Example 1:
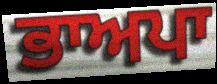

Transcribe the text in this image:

ਭਾਅਪਾ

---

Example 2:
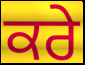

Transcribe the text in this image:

ਕਰੇ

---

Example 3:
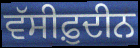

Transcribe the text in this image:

ਵੱਸੀਫ਼ੁਦੀਨ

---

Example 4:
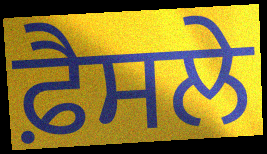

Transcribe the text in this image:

ਫ਼ੈਸਲੇ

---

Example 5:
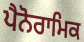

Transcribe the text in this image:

ਪੈਨੋਰਾਮਿਕ